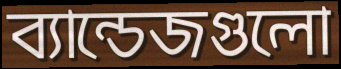
ব্যান্ডেজগুলো